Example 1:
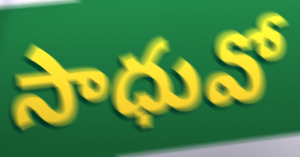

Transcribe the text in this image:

సాధువో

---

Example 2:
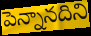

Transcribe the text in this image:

పెన్నానదిని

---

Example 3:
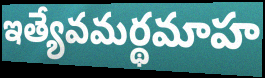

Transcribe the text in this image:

ఇత్యేవమర్థమాహ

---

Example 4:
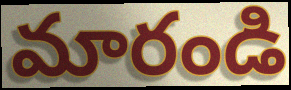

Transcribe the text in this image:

మారండి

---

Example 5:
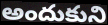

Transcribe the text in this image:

అందుకుని